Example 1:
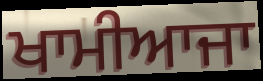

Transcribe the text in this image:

ਖਾਮੀਆਜਾ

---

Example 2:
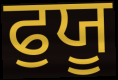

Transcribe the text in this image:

ਫੁਯੂ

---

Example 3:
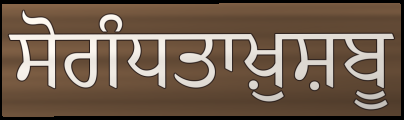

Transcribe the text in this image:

ਸੋਗੰਧਤਾਖ਼ੁਸ਼ਬੂ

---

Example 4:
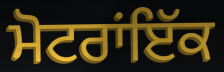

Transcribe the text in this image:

ਮੋਟਰਾਂਇੱਕ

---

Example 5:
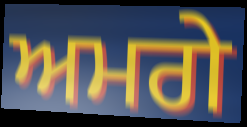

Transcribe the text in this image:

ਅਮਗੇ